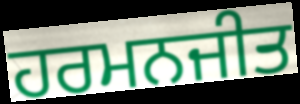
ਹਰਮਨਜੀਤ